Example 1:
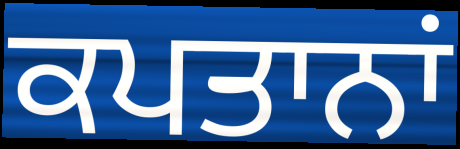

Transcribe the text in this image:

ਕਪਤਾਨਾਂ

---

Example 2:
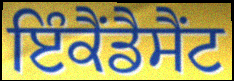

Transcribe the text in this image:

ਇੰਕੈਂਡੈਸੈਂਟ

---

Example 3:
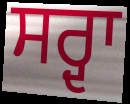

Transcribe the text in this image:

ਸਰ੍ਦਾ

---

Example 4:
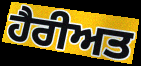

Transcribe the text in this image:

ਹੈਰੀਅਤ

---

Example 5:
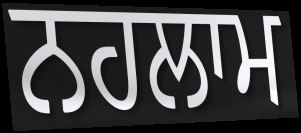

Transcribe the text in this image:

ਨਹਲਾਮ